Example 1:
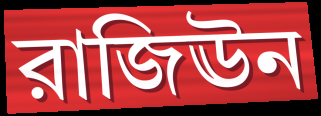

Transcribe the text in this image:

রাজিঊন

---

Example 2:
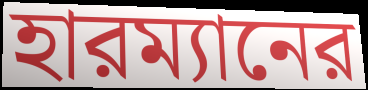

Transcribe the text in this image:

হারম্যানের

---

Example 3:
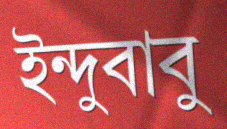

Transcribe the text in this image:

ইন্দুবাবু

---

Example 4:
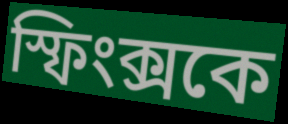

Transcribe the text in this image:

স্ফিংক্সকে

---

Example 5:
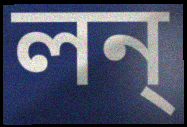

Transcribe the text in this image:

লন্